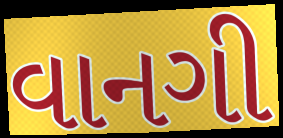
વાનગી